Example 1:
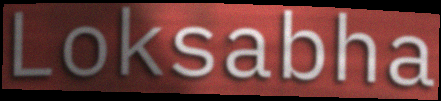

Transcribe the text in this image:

Loksabha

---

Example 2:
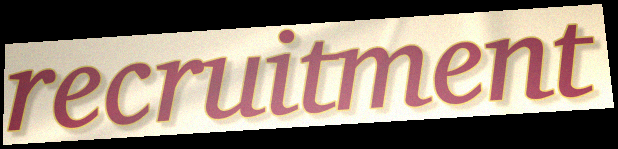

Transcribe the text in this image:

recruitment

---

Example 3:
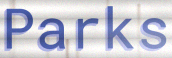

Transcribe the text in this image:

Parks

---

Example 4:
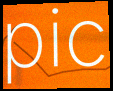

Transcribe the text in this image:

pic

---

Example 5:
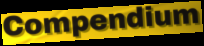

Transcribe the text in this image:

Compendium